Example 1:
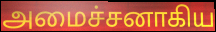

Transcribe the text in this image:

அமைச்சனாகிய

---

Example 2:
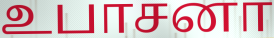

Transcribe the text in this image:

உபாசனா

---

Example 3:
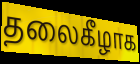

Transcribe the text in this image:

தலைகீழாக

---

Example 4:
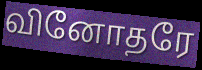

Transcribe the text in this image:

வினோதரே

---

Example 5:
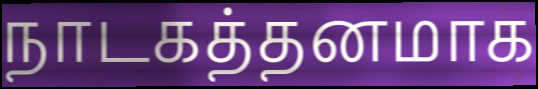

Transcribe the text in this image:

நாடகத்தனமாக